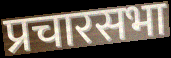
प्रचारसभा